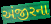
અંજીરના